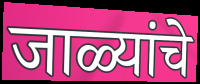
जाळ्यांचे